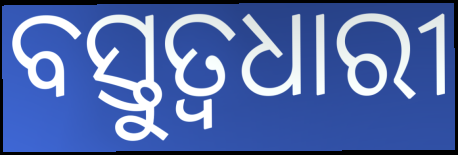
ବସ୍ତୁତ୍ୱଧାରୀ